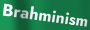
Brahminism